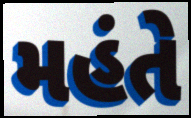
મહંતે